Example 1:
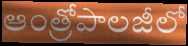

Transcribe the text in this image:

ఆంత్రోపాలజీలో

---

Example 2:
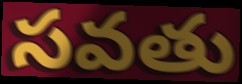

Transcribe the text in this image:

సవతు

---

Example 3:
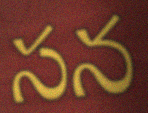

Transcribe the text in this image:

సన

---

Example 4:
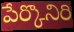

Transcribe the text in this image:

పేర్కొనిరి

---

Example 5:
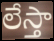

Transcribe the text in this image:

లేస్తా